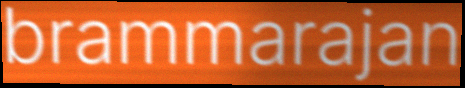
brammarajan